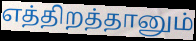
எத்திறத்தானும்